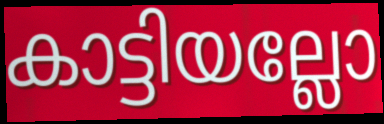
കാട്ടിയല്ലോ